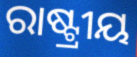
ରାଷ୍ଟ୍ରୀୟ